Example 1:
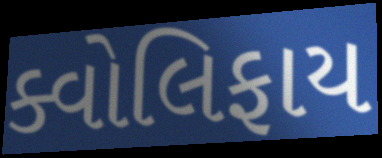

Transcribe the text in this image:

ક્વોલિફાય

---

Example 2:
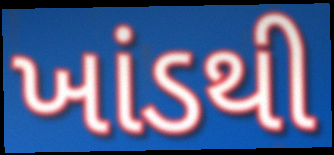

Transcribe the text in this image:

ખાંડથી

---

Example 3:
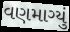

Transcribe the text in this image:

વણમાગ્યું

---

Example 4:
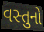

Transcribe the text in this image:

વસ્તુનો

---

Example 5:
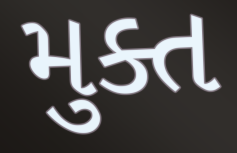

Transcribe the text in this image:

મુક્ત